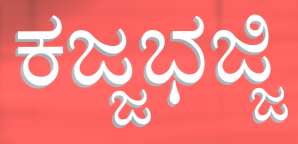
ಕಜ್ಜಭಜ್ಜಿ